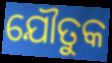
ଯୌତୁକ